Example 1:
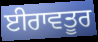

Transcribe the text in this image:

ਈਰਾਵਤੂਰ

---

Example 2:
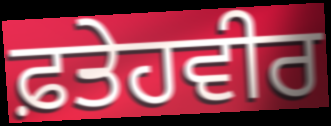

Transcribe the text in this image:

ਫ਼ਤੇਹਵੀਰ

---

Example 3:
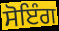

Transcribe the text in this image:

ਸੋਇੰਗ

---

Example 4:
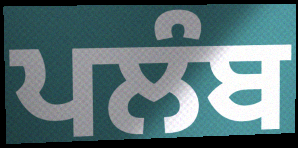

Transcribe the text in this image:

ਪਲੰਬ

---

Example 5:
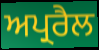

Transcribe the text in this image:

ਅਪ੍ਰਰੈਲ